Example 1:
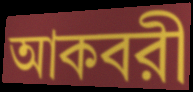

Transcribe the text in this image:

আকবরী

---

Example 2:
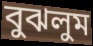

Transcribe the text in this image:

বুঝলুম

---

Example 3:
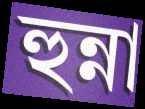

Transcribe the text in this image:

হুন্না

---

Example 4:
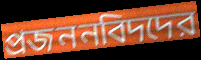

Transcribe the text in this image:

প্রজননবিদদের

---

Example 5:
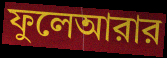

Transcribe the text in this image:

ফুলেআরার